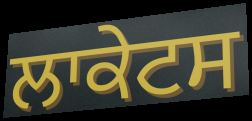
ਲਾਕੇਟਸ